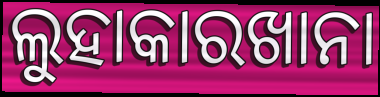
ଲୁହାକାରଖାନା